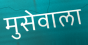
मुसेवाला